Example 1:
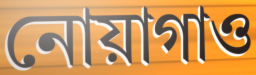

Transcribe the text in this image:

নোয়াগাও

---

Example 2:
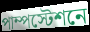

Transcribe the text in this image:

পাম্পস্টেশনে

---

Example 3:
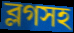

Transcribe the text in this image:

ব্লগসহ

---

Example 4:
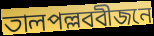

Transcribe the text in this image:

তালপল্লববীজনে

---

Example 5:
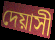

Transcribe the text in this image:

দেয়াসী